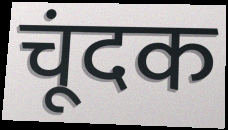
चूंदक